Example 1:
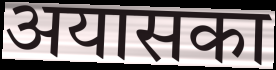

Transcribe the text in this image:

अयासका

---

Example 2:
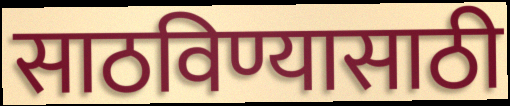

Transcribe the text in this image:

साठविण्यासाठी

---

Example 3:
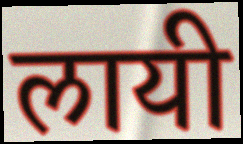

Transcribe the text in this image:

लायी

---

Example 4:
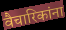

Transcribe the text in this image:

वैचारिकांना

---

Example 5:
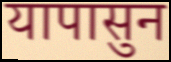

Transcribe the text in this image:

यापासुन